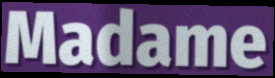
Madame